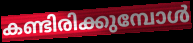
കണ്ടിരിക്കുമ്പോൾ